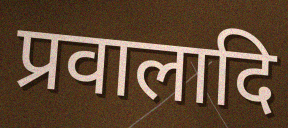
प्रवालादि